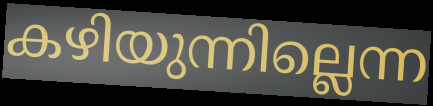
കഴിയുന്നില്ലെന്ന